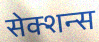
सेक्शन्स